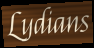
Lydians